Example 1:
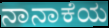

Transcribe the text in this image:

ನಾನಾಕೆಯ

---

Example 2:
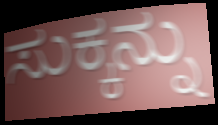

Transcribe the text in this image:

ಸುಕ್ಕನ್ನು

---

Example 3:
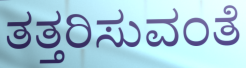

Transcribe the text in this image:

ತತ್ತರಿಸುವಂತೆ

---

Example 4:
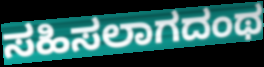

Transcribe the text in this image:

ಸಹಿಸಲಾಗದಂಥ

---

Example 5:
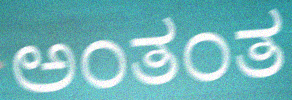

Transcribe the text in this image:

ಅಂತಂತ